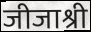
जीजाश्री